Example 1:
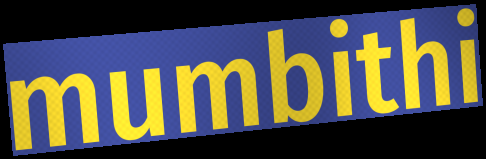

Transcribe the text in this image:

mumbithi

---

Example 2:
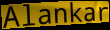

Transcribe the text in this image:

Alankar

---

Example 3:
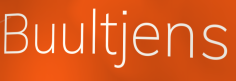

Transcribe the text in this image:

Buultjens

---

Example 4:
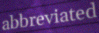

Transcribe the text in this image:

abbreviated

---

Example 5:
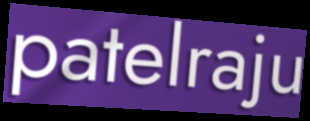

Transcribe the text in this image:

patelraju